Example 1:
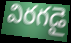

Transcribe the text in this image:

విరగడై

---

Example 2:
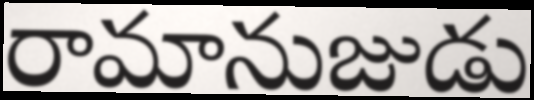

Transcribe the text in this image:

రామానుజుడు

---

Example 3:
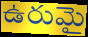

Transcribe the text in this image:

ఉరుమై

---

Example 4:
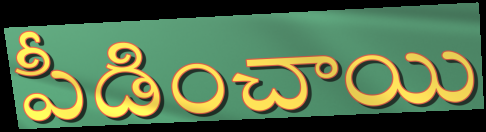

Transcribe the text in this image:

పీడించాయి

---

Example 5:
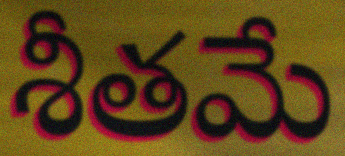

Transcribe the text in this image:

శీతమే